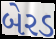
બેરડ